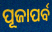
ପୂଜାପର୍ବ